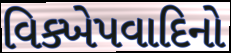
વિક્ખેપવાદિનો